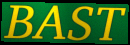
BAST